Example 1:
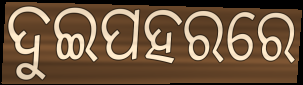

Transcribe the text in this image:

ଦୁଇପହରରେ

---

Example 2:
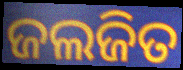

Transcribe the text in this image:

ଜଲଜିତ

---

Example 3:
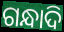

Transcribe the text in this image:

ଗନ୍ଧାଦି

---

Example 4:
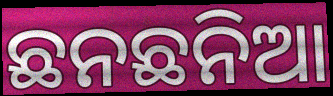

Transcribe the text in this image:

ଛନଛନିଆ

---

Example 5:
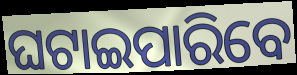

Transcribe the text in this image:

ଘଟାଇପାରିବେ